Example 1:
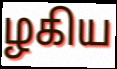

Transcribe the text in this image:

ழகிய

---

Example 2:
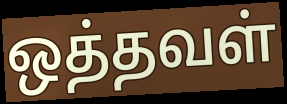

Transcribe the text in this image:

ஒத்தவள்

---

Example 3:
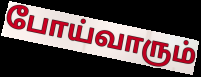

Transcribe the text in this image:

போய்வாரும்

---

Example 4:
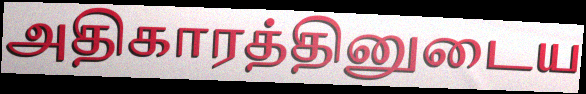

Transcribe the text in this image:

அதிகாரத்தினுடைய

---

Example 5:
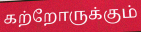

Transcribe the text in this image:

கற்றோருக்கும்